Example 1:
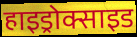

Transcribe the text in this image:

हाइड्रोक्साइड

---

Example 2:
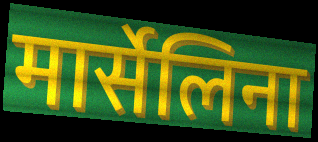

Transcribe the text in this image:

मार्सेलिना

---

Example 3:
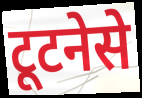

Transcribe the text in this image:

टूटनेसे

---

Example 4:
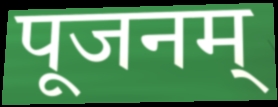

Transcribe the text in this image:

पूजनम्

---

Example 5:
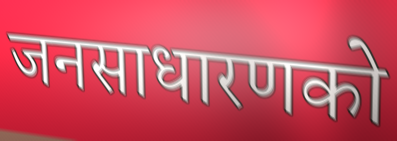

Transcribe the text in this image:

जनसाधारणको